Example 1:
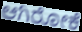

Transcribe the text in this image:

ಆಗಿರೋಕೆ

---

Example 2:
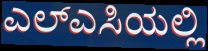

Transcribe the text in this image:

ಎಲ್ಎಸಿಯಲ್ಲಿ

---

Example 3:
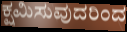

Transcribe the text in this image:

ಕ್ಷಮಿಸುವುದರಿಂದ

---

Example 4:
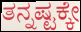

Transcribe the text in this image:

ತನ್ನಷ್ಟಕ್ಕೇ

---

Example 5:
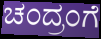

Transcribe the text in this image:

ಚಂದ್ರಂಗೆ